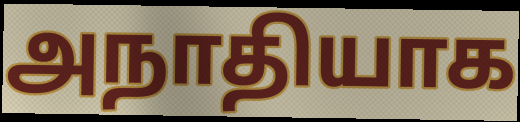
அநாதியாக